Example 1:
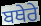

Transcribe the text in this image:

ਬਥੇਰੇ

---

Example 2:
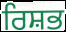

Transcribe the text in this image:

ਰਿਸ਼ਭ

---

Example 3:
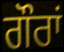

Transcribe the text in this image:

ਗੌਰਾਂ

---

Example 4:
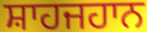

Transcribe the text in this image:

ਸ਼ਾਹਜਹਾਨ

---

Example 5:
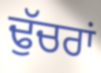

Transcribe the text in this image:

ਢੁੱਚਰਾਂ